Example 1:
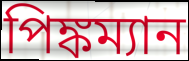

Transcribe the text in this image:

পিঙ্কম্যান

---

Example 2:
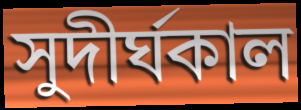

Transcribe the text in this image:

সুদীর্ঘকাল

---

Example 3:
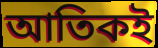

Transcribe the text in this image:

আতিকই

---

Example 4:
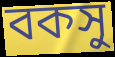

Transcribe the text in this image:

বকসু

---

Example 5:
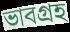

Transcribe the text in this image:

ভাবগ্রহ